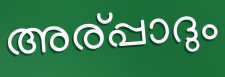
അര്പ്പാദും